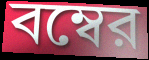
বম্বের